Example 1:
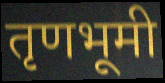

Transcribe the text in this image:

तृणभूमी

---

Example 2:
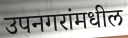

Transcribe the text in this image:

उपनगरांमधील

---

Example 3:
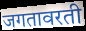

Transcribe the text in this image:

जगतावरती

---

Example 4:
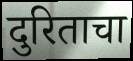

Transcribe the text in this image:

दुरिताचा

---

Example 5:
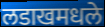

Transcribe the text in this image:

लडाखमधले